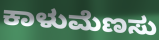
ಕಾಳುಮೆಣಸು